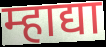
म्हाद्या